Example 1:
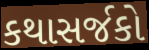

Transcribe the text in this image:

કથાસર્જકો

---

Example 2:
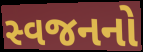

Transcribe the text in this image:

સ્વજનનો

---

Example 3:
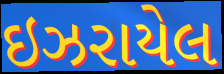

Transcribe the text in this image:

ઇઝરાયેલ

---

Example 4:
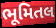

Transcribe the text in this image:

ભૂમિતલ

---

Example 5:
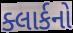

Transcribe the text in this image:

ક્લાર્કનો